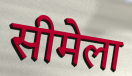
सीमेला